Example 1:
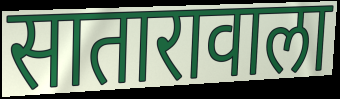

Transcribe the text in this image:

सातारावाला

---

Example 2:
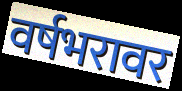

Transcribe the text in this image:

वर्षभरावर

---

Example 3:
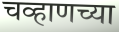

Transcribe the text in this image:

चव्हाणच्या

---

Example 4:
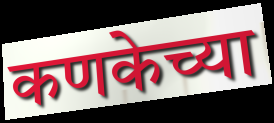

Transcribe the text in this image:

कणकेच्या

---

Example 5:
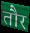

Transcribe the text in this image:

तौर